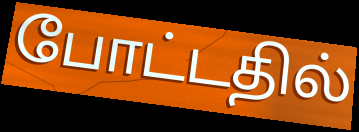
போட்டதில்